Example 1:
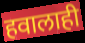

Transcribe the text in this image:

हवालाही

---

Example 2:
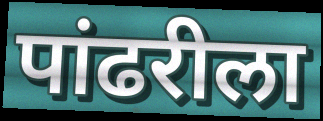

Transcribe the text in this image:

पांढरीला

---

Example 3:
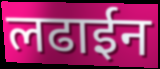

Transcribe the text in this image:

लढाईन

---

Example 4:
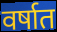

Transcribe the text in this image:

वर्षात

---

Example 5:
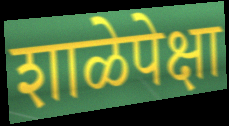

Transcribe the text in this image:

शाळेपेक्षा